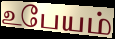
உபேயம்